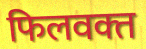
फिलवक्‍त